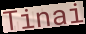
Tinai